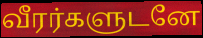
வீரர்களுடனே